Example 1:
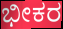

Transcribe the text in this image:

ಭೀಕರ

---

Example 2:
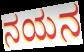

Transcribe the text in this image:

ನಯನ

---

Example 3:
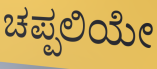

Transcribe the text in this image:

ಚಪ್ಪಲಿಯೇ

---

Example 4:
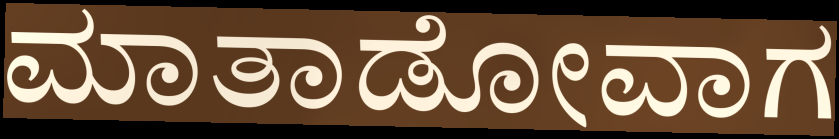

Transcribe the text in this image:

ಮಾತಾಡೋವಾಗ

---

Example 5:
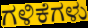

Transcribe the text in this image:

ಗಳಿಕೆಗಳು